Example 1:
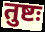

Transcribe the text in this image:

तुष्टः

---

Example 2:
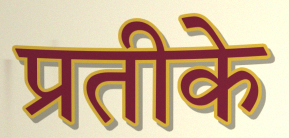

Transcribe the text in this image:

प्रतीके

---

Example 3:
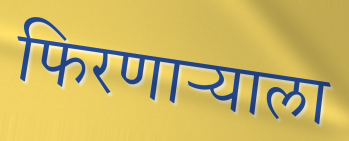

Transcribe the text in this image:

फिरणाऱ्याला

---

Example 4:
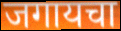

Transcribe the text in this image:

जगायचा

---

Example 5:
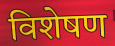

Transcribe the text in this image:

विशेषण